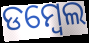
ଡମ୍ୱେଲ